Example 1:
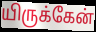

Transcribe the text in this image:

யிருக்கேன்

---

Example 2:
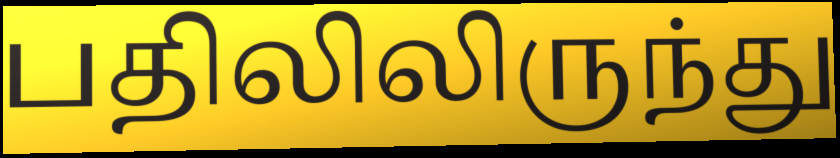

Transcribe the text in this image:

பதிலிலிருந்து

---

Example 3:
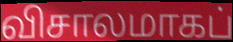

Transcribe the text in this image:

விசாலமாகப்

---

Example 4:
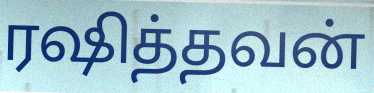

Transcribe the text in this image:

ரஷித்தவன்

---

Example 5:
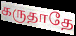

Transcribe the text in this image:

கருதாதே